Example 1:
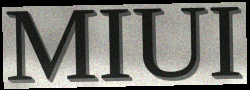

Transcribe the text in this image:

MIUI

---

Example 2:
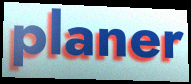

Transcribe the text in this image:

planer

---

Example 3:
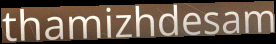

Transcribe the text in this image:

thamizhdesam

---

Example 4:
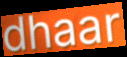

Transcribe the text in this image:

dhaar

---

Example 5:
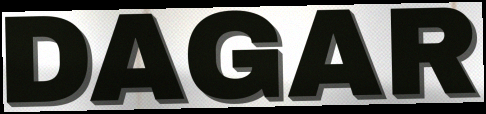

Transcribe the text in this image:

DAGAR